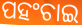
ପହଂଚାଇ